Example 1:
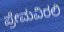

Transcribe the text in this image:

ಪ್ರೇಮವಿರಲಿ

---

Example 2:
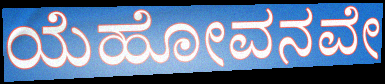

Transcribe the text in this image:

ಯೆಹೋವನವೇ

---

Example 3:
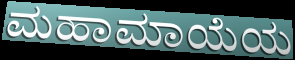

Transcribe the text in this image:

ಮಹಾಮಾಯೆಯ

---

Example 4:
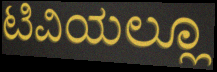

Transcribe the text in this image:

ಟಿವಿಯಲ್ಲೂ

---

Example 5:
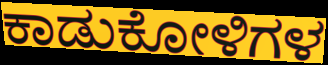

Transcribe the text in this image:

ಕಾಡುಕೋಳಿಗಳ